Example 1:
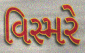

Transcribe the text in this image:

વિસ્મરે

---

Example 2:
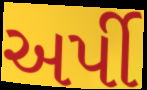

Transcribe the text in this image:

અર્પી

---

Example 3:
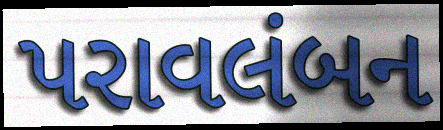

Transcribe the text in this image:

પરાવલંબન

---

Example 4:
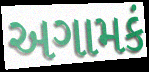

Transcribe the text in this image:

અગામકં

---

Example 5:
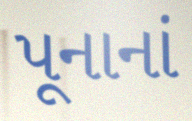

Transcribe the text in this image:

પૂનાનાં